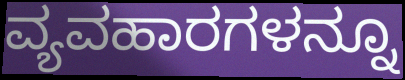
ವ್ಯವಹಾರಗಳನ್ನೂ